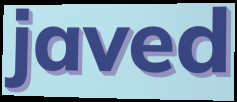
javed